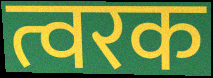
त्वरक